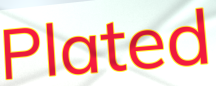
Plated